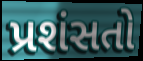
પ્રશંસતો